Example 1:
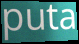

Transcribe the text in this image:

puta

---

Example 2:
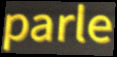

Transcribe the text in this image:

parle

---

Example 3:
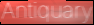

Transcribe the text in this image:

Antiquary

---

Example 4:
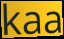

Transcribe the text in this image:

kaa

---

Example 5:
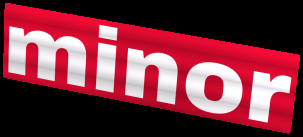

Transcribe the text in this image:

minor